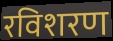
रविशरण